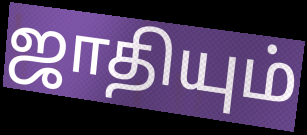
ஜாதியும்